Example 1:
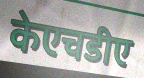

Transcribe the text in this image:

केएचडीए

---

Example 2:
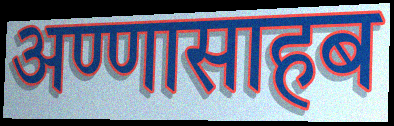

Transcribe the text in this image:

अण्णासाहब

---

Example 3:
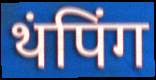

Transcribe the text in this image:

थंपिंग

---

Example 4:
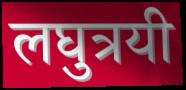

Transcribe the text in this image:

लघुत्रयी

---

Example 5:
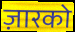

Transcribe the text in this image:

ज़ारको